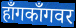
हाँगकाँगवर